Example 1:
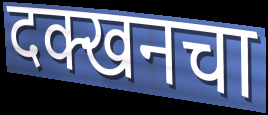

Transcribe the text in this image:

दक्खनचा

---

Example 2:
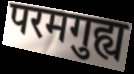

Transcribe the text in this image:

परमगुह्य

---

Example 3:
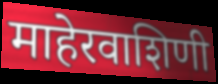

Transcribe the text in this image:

माहेरवाशिणी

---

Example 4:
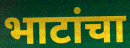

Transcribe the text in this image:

भाटांचा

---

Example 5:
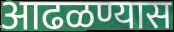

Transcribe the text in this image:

आढळण्यास